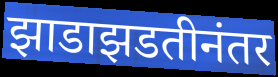
झाडाझडतीनंतर